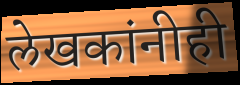
लेखकांनीही